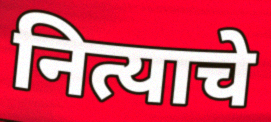
नित्याचे